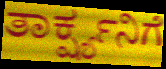
ತಾರ್ಕ್ಷ್ಯನಿಗೆ